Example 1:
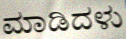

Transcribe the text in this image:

ಮಾಡಿದಳು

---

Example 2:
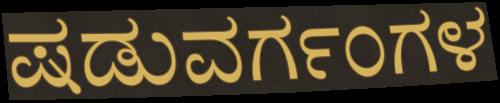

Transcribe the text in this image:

ಷಡುವರ್ಗಂಗಳ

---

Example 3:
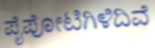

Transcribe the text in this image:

ಪೈಪೋಟಿಗಿಳಿದಿವೆ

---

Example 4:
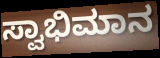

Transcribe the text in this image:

ಸ್ವಾಭಿಮಾನ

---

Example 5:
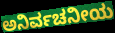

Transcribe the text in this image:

ಅನಿರ್ವಚನೀಯ